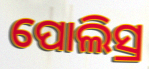
ପୋଲିସ୍ର